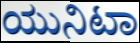
ಯುನಿಟಾ